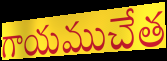
గాయముచేత